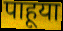
पाहूया